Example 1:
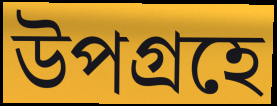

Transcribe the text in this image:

উপগ্রহে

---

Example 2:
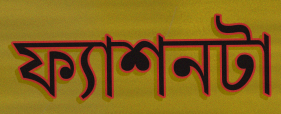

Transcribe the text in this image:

ফ্যাশনটা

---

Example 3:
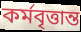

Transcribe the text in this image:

কর্মবৃত্তান্ত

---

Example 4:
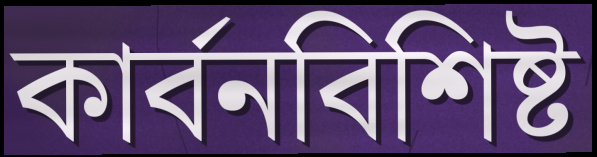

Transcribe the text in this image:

কার্বনবিশিষ্ট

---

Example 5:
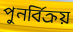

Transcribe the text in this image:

পুনর্বিক্রয়